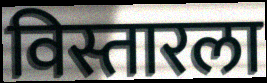
विस्तारला